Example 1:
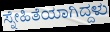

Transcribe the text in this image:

ಸ್ನೇಹಿತೆಯಾಗಿದ್ದಳು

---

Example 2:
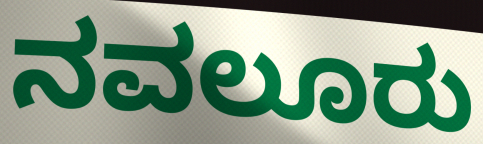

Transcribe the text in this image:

ನವಲೂರು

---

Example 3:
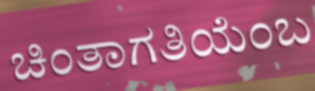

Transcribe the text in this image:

ಚಿಂತಾಗತಿಯೆಂಬ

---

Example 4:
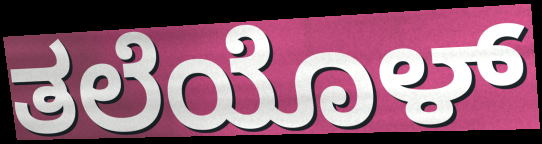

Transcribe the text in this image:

ತಲೆಯೊಳ್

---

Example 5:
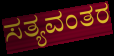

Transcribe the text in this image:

ಸತ್ಯವಂತರ